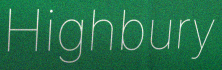
Highbury